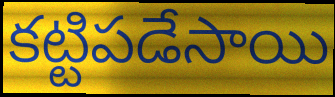
కట్టిపడేసాయి